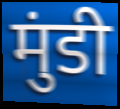
मुंडी